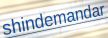
shindemandar